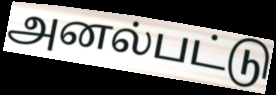
அனல்பட்டு